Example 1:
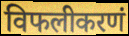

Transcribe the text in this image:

विफलीकरणं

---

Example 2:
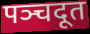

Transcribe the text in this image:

पञ्चदूत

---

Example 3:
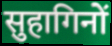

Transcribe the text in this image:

सुहागिनों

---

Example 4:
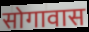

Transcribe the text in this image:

सोगावास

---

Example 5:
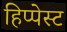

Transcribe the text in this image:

हिप्पेस्ट